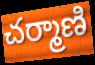
చర్మాణి